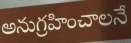
అనుగ్రహించాలనే